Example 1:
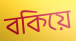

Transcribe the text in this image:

বকিয়ে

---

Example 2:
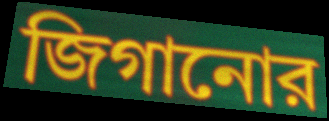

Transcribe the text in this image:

জিগানোর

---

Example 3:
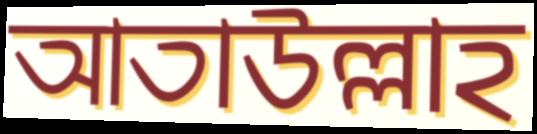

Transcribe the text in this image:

আতাউল্লাহ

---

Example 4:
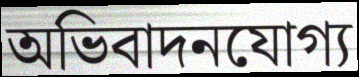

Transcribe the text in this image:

অভিবাদনযোগ্য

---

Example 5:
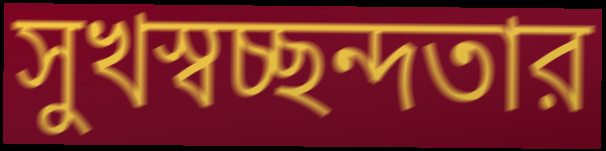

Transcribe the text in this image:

সুখস্বচ্ছন্দতার